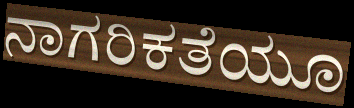
ನಾಗರಿಕತೆಯೂ